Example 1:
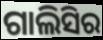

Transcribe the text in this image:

ଗାଲିସିର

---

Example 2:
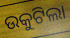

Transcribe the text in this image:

ଉକୁଟିଲା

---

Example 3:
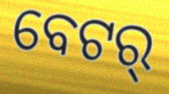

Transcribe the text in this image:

ବେଟର୍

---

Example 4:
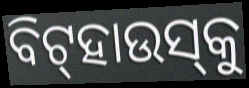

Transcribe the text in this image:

ବିଟ୍‌ହାଉସ୍‌କୁ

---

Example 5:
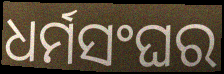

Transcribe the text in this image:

ଧର୍ମସଂଘର